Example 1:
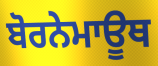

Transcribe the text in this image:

ਬੋਰਨੇਮਾਊਥ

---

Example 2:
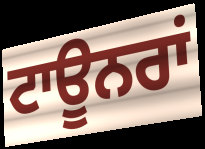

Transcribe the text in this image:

ਟਾਊਨਰਾਂ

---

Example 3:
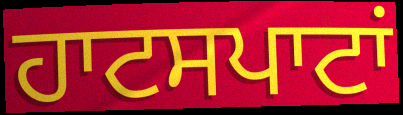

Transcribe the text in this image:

ਹਾਟਸਪਾਟਾਂ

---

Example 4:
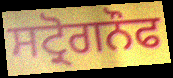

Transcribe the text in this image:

ਸਟ੍ਰੋਗਨੌਫ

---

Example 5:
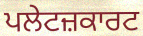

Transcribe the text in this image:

ਪਲੇਟਜ਼ਕਾਰਟ